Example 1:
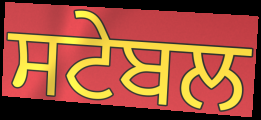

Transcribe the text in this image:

ਸਟੇਬਲ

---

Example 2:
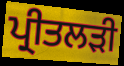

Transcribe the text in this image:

ਪ੍ਰੀਤਲੜੀ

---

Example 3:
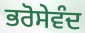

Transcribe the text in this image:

ਭਰੋਸੇਵੰਦ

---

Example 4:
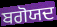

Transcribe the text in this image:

ਬਗੋਯਦ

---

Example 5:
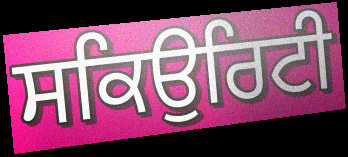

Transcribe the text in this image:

ਸਕਿਉਰਿਟੀ